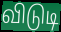
விடுடி